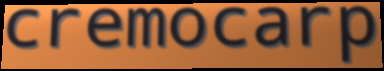
cremocarp